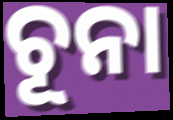
ଚୂନା